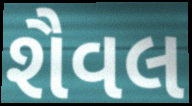
શૈવલ